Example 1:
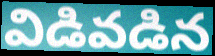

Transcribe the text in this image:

విడివడిన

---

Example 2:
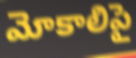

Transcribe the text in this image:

మోకాలిపై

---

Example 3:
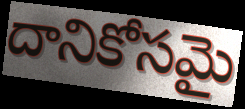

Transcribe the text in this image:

దానికోసమై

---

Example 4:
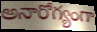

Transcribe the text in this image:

అనారోగ్యంగా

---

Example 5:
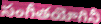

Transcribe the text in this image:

సంగీతయోగినీ